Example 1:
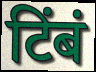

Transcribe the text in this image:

टिंबं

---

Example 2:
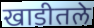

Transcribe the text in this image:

खाडीतले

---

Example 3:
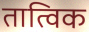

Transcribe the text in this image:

तात्विक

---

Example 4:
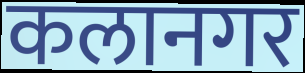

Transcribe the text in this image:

कलानगर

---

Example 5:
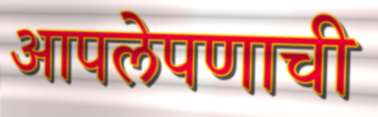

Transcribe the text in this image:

आपलेपणाची